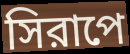
সিরাপে